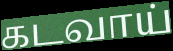
கடவாய்